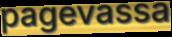
pagevassa